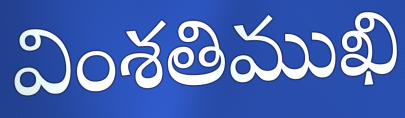
వింశతిముఖి